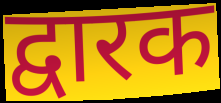
द्वारक